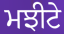
ਮਝੀਟੇ